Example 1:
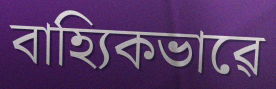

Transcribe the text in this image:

বাহ্যিকভাৱে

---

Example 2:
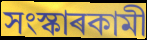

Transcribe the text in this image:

সংস্কাৰকামী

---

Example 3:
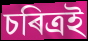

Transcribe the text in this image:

চৰিত্ৰই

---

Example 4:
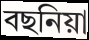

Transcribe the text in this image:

বছনিয়া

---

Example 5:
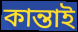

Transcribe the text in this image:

কান্তাই